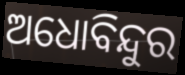
ଅଧୋବିନ୍ଦୁର